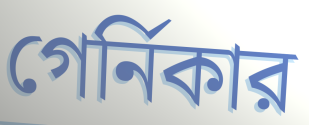
গের্নিকার